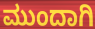
ಮುಂದಾಗಿ